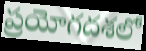
ప్రయోగదశలో